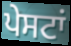
ਪੇਸਟਾਂ